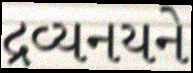
દ્રવ્યનયને